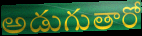
అడుగుతారో